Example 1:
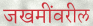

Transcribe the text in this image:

जखमींवरील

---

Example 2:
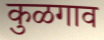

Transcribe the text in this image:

कुळगाव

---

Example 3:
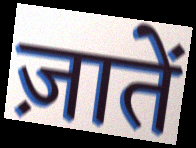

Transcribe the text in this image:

ज़ातें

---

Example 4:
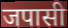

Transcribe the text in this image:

जपासी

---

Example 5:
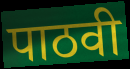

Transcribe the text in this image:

पाठवी